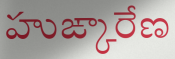
హుఙ్కారేణ